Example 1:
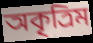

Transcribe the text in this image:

অকৃত্রিম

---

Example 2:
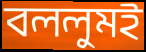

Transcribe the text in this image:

বললুমই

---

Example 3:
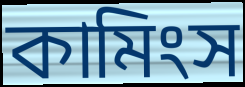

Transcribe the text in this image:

কামিংস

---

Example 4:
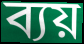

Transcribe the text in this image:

ব্যয়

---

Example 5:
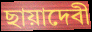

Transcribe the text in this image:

ছায়াদেবী